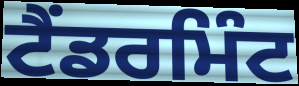
ਟੈਂਡਰਮਿੰਟ